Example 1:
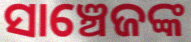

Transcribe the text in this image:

ସାଞ୍ଚେଜଙ୍କ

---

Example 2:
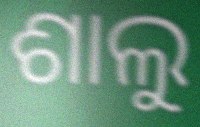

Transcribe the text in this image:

ଶାଲୁ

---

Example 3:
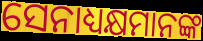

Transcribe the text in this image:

ସେନାଧ୍ୟକ୍ଷମାନଙ୍କ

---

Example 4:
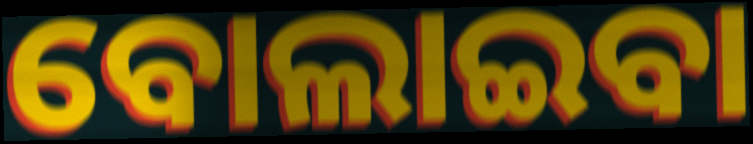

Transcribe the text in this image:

ବୋଲାଇବା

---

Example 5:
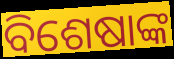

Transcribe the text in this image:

ବିଶେଷାଙ୍କ